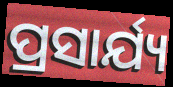
ପ୍ରସାର୍ଯ୍ୟ